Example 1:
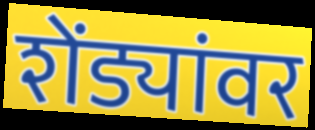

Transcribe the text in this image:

शेंड्यांवर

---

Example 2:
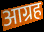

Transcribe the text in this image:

आग्रह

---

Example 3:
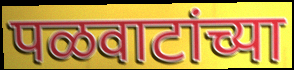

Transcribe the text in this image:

पळवाटांच्या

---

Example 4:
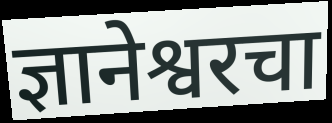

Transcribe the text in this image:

ज्ञानेश्वरचा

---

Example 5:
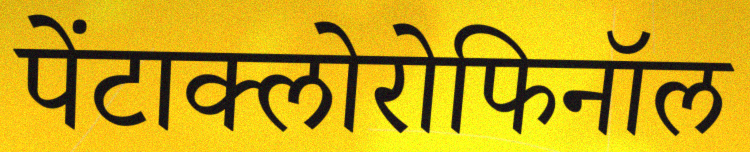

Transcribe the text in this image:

पेंटाक्लोरोफिनॉल